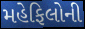
મહેફિલોની